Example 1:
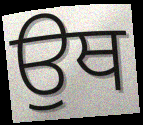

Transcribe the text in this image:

ਉਥ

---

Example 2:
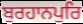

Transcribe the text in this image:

ਬੁਰਹਾਨਪੁਰਿ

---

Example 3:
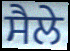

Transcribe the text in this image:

ਸੈਲੇ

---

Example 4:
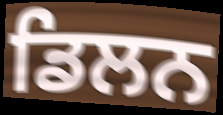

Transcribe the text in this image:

ਡਿਲਨ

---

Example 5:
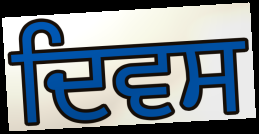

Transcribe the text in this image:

ਦਿਵਸ